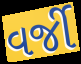
વર્જી